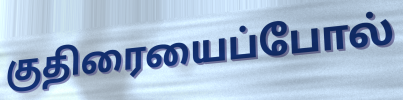
குதிரையைப்போல்